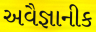
અવૈજ્ઞાનીક